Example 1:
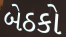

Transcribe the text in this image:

બેઠકો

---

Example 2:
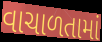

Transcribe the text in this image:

વાચાળતામાં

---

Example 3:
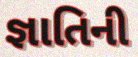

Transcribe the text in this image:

જ્ઞાતિની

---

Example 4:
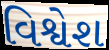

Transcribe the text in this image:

વિશ્વેશ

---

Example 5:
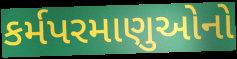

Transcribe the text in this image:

કર્મપરમાણુઓનો